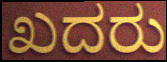
ಖದರು